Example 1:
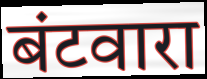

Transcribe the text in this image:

बंटवारा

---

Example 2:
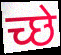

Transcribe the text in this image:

च्छे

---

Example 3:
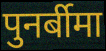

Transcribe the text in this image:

पुनर्बीमा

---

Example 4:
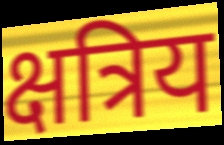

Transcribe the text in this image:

क्षत्रिय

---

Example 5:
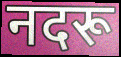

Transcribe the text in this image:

नदरू